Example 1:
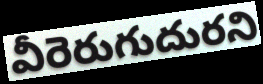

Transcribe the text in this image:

వీరెరుగుదురని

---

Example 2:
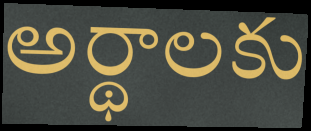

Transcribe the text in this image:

అర్థాలకు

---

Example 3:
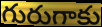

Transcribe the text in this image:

గురుగాకు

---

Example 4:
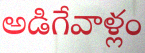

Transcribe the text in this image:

అడిగేవాళ్లం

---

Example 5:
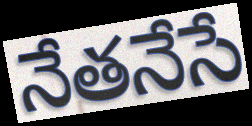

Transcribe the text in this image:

నేతనేసే